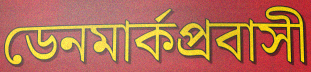
ডেনমার্কপ্রবাসী